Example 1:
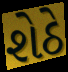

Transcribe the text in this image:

શેઠે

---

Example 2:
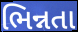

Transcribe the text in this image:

ભિન્નતા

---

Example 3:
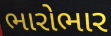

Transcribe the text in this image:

ભારોભાર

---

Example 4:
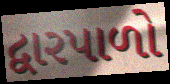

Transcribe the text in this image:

દ્વારપાળો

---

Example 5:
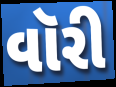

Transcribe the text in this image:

વૉરી